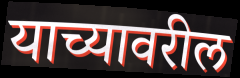
याच्यावरील